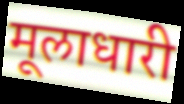
मूलाधारी